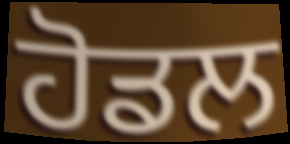
ਹੋਡਲ